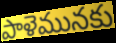
పాళెమునకు